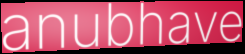
anubhave